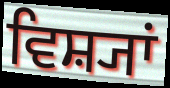
ਵਿਸ਼੍ਯਾਂ